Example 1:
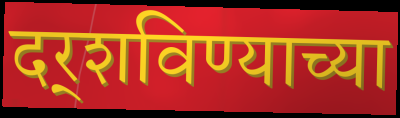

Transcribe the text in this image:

दर्शविण्याच्या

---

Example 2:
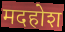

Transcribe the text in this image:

मदहोश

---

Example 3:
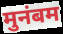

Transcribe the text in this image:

मुनंबम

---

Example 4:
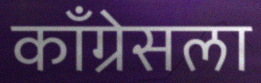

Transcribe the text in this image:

काँग्रेसला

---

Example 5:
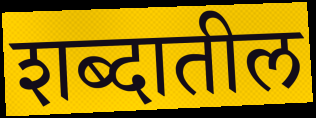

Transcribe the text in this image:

शब्दातील